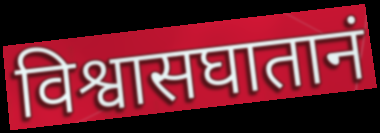
विश्वासघातानं